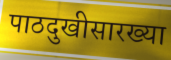
पाठदुखीसारख्या